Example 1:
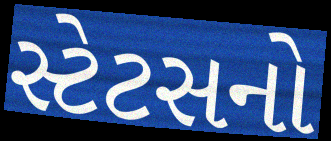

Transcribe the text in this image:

સ્ટેટસનો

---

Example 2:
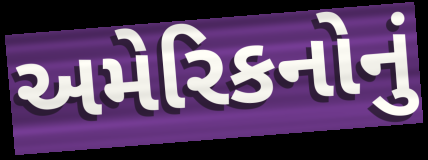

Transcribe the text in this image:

અમેરિકનોનું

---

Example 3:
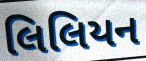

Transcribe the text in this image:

લિલિયન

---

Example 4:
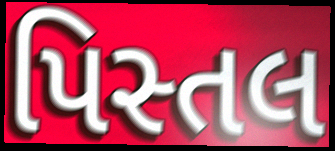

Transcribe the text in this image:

પિસ્તલ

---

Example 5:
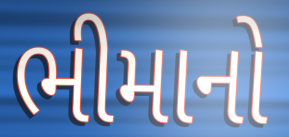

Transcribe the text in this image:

ભીમાનો